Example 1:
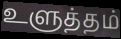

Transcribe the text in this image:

உளுத்தம்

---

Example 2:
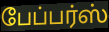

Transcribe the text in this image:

பேப்பர்ஸ்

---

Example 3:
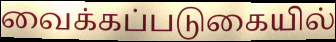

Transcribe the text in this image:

வைக்கப்படுகையில்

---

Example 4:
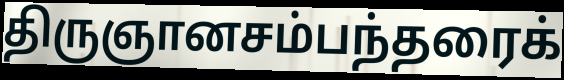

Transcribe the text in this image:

திருஞானசம்பந்தரைக்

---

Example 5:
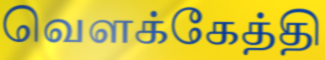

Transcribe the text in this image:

வெளக்கேத்தி